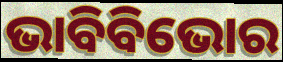
ଭାବିବିଭୋର